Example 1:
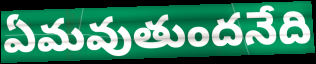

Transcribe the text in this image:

ఏమవుతుందనేది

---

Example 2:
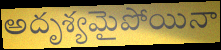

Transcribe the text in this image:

అదృశ్యమైపోయినా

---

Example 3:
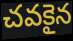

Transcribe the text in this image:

చవకైన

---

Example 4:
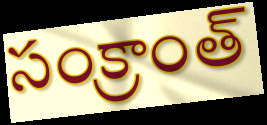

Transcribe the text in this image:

సంక్రాంత్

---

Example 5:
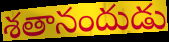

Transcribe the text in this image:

శతానందుడు